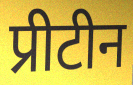
प्रीटीन